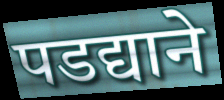
पडद्याने